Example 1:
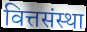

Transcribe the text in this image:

वित्तसंस्था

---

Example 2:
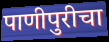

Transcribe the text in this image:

पाणीपुरीचा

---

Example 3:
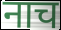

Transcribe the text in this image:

नाच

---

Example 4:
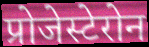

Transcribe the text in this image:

प्रोजेस्टेरोन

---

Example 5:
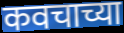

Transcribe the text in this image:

कवचाच्या